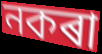
নকৰা